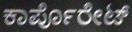
ಕಾರ್ಪೊರೇಟ್